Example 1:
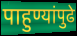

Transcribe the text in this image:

पाहुण्यांपुढे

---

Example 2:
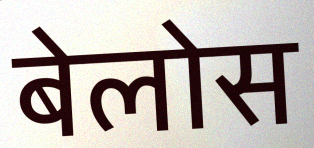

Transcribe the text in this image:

बेलोस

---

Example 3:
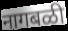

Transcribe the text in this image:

नागबळी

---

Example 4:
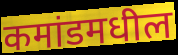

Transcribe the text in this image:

कमांडमधील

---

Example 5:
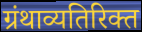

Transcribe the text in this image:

ग्रंथाव्यतिरिक्त